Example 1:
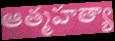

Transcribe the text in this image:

ఆత్మహత్యా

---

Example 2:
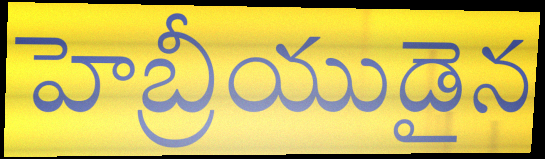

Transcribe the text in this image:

హెబ్రీయుడైన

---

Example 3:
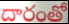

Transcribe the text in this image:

దారంతో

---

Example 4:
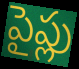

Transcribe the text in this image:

పైప్లు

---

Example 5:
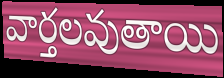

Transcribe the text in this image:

వార్తలవుతాయి